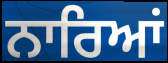
ਨਾਰਿਆਂ